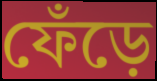
ফেঁড়ে